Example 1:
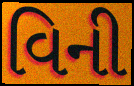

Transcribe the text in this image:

વિની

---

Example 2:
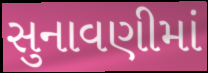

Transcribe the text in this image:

સુનાવણીમાં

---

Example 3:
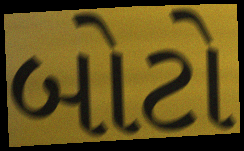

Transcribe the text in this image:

બોટો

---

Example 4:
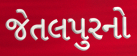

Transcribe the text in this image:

જેતલપુરનો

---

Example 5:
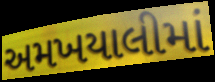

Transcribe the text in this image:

અમખયાલીમાં